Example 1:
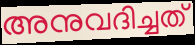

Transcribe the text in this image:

അനുവദിച്ചത്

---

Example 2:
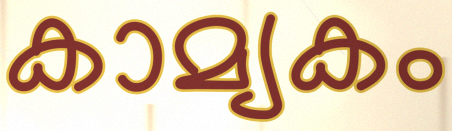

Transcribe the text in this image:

കാമ്യകം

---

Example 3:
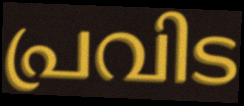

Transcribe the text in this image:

പ്രവിട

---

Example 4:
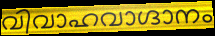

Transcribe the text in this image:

വിവാഹവാഗ്ദാനം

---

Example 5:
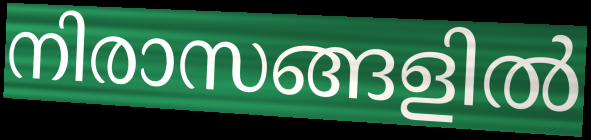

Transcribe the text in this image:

നിരാസങ്ങളിൽ